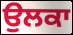
ਉਲਕਾ